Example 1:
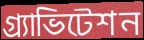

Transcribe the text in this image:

গ্র্যাভিটেশন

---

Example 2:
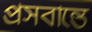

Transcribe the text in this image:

প্রসবান্তে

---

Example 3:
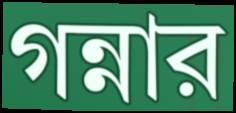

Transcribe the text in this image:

গন্নার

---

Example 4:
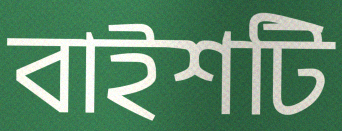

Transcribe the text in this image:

বাইশটি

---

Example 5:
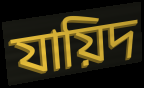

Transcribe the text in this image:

যায়িদ